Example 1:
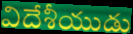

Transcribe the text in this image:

విదేశీయుడు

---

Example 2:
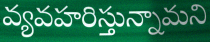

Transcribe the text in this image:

వ్యవహరిస్తున్నామని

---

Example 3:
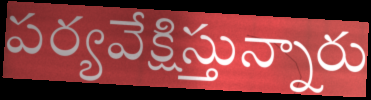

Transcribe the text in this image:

పర్యవేక్షిస్తున్నారు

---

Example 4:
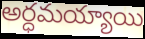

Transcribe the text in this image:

అర్ధమయ్యాయి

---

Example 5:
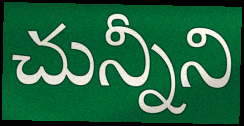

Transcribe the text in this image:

చున్నీని